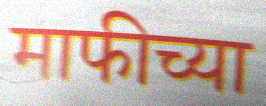
माफीच्या